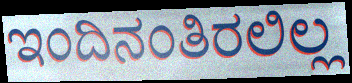
ಇಂದಿನಂತಿರಲಿಲ್ಲ